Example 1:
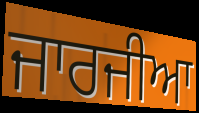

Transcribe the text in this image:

ਜਾਰਜੀਆ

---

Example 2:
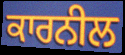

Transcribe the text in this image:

ਕਾਰਨੀਲ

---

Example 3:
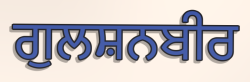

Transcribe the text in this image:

ਗੁਲਸ਼ਨਬੀਰ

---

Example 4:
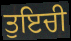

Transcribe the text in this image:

ਤੁਇਚੀ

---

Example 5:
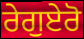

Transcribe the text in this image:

ਰੇਗੁਏਰੋ